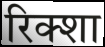
रिक्शा